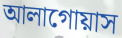
আলাগোয়াস